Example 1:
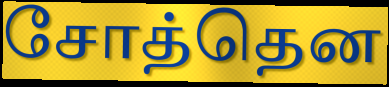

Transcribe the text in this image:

சோத்தென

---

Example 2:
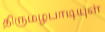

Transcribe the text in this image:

திருமழபாடியுள்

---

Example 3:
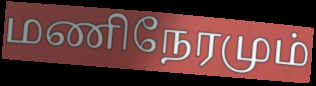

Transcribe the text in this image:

மணிநேரமும்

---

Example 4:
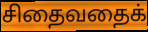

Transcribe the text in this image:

சிதைவதைக்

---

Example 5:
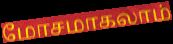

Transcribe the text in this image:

மோசமாகலாம்